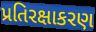
પ્રતિરક્ષાકરણ